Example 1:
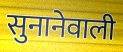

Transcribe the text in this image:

सुनानेवाली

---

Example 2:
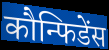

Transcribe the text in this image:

कौन्फिडेंस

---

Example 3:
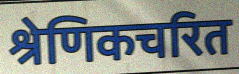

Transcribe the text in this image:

श्रेणिकचरित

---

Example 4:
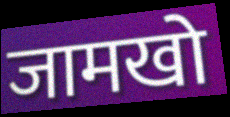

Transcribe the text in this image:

जामखो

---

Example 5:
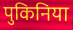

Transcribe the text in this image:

पुकिनिया